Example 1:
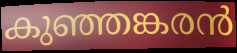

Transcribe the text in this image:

കുഞ്ഞങ്കരൻ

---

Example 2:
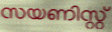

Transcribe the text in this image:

സയണിസ്റ്റ്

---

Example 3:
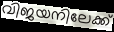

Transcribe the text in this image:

വിജയനിലേക്ക്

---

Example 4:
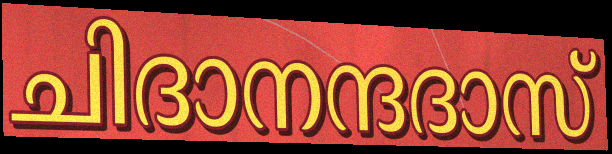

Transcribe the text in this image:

ചിദാനന്ദദാസ്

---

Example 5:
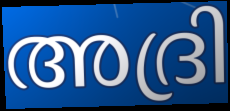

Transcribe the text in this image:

അദ്രി